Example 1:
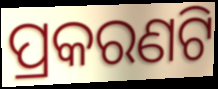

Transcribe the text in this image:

ପ୍ରକରଣଟି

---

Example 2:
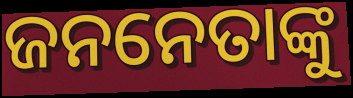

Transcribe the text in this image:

ଜନନେତାଙ୍କୁ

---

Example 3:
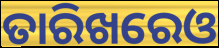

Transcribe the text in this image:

ତାରିଖରେଓ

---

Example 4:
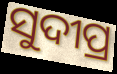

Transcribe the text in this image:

ସୁଦୀପ୍ର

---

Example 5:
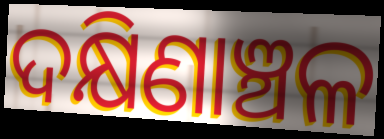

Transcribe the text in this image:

ଦକ୍ଷିଣାଞ୍ଚଳ